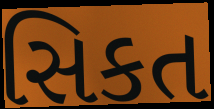
સિકત